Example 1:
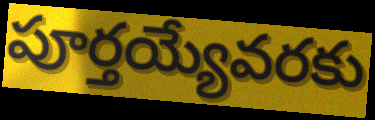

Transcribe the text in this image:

పూర్తయ్యేవరకు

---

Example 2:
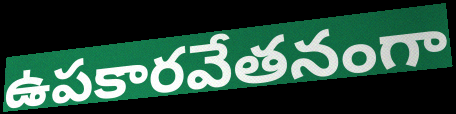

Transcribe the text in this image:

ఉపకారవేతనంగా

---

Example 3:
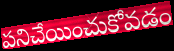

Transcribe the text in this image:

పనిచేయించుకోవడం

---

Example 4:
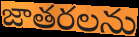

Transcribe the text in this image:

జాతరలను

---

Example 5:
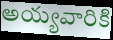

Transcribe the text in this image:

అయ్యవారికి